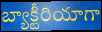
బ్యాక్టీరియాగా